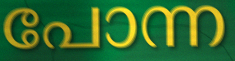
പോന്ന